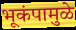
भूकंपामुळे